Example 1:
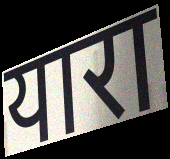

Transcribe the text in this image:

यारा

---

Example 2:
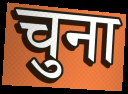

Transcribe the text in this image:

चुना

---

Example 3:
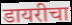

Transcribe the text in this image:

डायरीचा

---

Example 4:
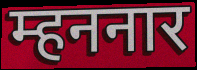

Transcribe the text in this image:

म्हननार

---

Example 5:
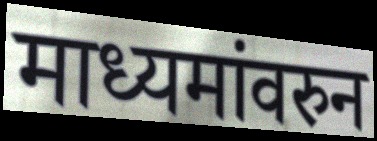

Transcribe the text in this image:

माध्यमांवरुन